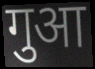
गुआ